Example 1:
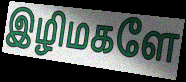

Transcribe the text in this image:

இழிமகளே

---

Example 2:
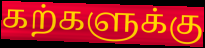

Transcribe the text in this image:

கற்களுக்கு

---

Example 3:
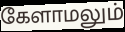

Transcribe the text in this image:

கேளாமலும்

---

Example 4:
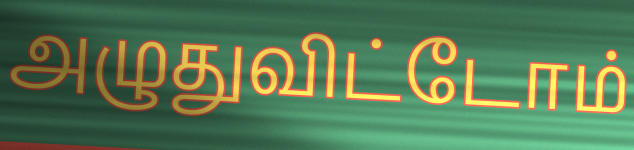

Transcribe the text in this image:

அழுதுவிட்டோம்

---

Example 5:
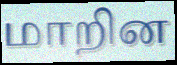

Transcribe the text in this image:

மாறின